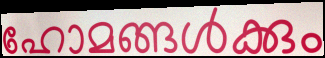
ഹോമങ്ങൾക്കും